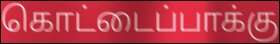
கொட்டைப்பாக்கு